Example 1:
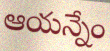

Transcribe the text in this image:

ఆయన్నేం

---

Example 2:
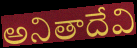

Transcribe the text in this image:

అనితాదేవి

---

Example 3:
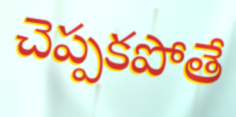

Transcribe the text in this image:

చెప్పకపోతే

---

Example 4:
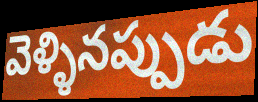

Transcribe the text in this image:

వెళ్ళినప్పుడు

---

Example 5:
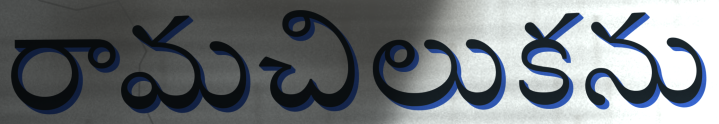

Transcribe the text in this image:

రామచిలుకను